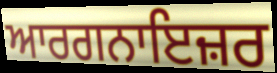
ਆਰਗਨਾਇਜ਼ਰ